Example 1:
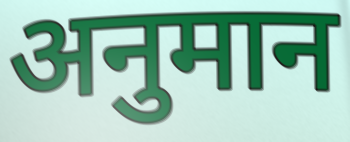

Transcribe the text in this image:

अनुमान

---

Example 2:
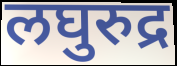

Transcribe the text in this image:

लघुरुद्र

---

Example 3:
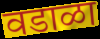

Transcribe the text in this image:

वडाळा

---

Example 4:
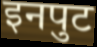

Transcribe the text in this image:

इनपुट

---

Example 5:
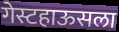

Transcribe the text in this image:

गेस्टहाऊसला